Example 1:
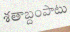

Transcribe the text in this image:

శతాబ్దంపాటు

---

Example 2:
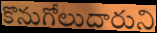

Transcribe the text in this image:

కొనుగోలుదారుని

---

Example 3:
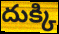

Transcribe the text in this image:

దుక్కి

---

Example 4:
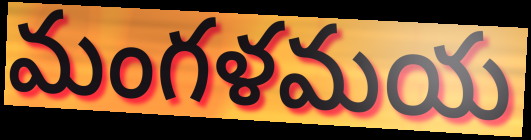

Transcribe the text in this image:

మంగళమయ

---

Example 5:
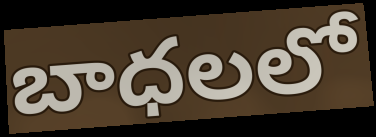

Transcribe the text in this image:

బాధలలో